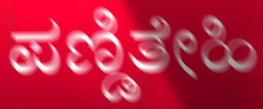
ಪಣ್ಡಿತೇಹಿ